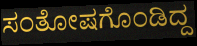
ಸಂತೋಷಗೊಂಡಿದ್ದ